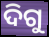
ଦିଗୁ